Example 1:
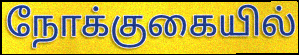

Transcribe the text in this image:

நோக்குகையில்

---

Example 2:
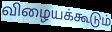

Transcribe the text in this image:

விழையக்கூடும்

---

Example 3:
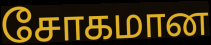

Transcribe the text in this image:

சோகமான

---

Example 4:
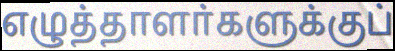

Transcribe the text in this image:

எழுத்தாளர்களுக்குப்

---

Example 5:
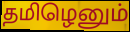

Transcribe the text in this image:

தமிழெனும்